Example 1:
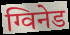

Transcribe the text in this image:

ग्विनेड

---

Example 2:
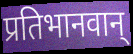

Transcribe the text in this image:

प्रतिभानवान्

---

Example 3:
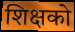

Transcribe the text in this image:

शिक्षको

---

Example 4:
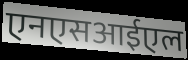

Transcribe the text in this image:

एनएसआईएल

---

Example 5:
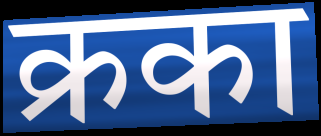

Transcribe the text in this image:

क्रका